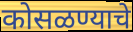
कोसळण्याचे